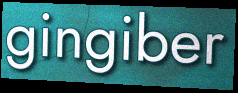
gingiber